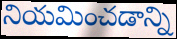
నియమించడాన్ని